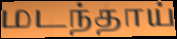
மடந்தாய்